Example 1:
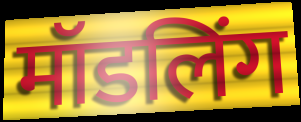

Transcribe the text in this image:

मॉडलिंग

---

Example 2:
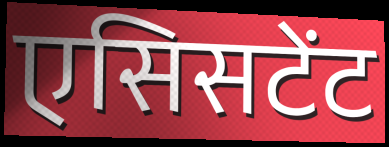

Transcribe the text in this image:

एसिसटेंट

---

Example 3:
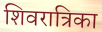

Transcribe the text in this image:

शिवरात्रिका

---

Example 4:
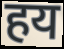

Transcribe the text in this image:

हय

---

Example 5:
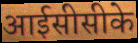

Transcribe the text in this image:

आईसीसीके